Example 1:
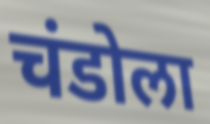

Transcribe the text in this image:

चंडोला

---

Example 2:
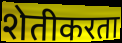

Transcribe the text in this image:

शेतीकरता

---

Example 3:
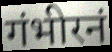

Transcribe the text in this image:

गंभीरनं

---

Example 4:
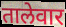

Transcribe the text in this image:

तालेवार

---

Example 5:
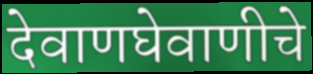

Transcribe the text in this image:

देवाणघेवाणीचे